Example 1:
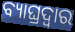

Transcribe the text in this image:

ବ୍ୟାଘ୍ରଦ୍ଵାର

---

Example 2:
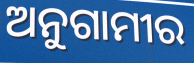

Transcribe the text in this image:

ଅନୁଗାମୀର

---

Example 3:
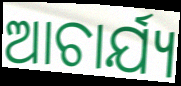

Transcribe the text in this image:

ଆଚାର୍ଯ୍ୟ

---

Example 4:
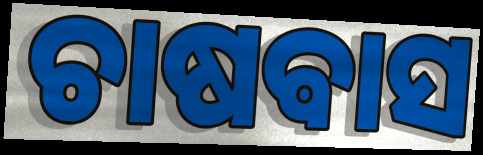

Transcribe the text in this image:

ଚାଷଵାସ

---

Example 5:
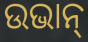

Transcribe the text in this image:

ଉଭାନ୍